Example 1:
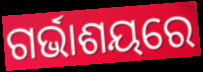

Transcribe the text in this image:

ଗର୍ଭାଶୟରେ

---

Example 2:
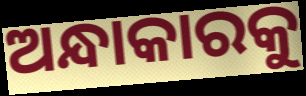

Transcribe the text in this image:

ଅନ୍ଧାକାରକୁ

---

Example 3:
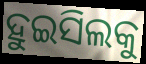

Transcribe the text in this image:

ହୁଇସିଲକୁ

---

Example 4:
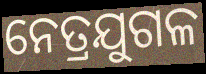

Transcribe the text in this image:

ନେତ୍ରଯୁଗଳ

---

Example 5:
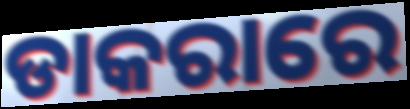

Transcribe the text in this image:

ଡାକରାରେ